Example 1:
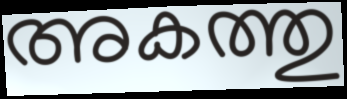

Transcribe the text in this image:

അകത്തു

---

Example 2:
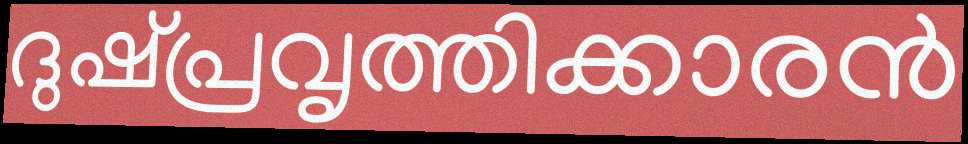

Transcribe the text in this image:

ദുഷ്പ്രവൃത്തിക്കാരൻ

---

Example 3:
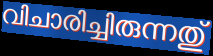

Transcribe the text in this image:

വിചാരിച്ചിരുന്നതു്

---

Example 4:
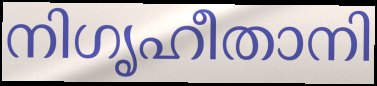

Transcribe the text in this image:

നിഗൃഹീതാനി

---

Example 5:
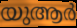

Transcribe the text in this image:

യുആർ